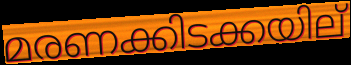
മരണക്കിടക്കയില്